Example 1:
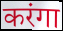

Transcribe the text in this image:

करंगा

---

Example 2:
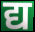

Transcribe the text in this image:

द्य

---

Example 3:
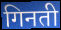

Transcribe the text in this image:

गिनती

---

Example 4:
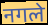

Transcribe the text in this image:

नगले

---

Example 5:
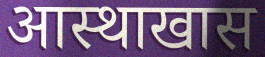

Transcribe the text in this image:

आस्थाखास